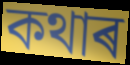
কথাৰ